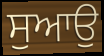
ਸੁਆਉ